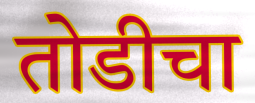
तोडीचा